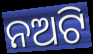
ନଅଟି